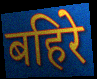
बहिरे